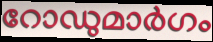
റോഡുമാർഗം